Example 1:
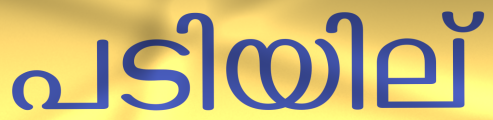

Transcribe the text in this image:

പടിയില്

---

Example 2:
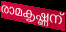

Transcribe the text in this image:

രാമകൃഷ്ണന്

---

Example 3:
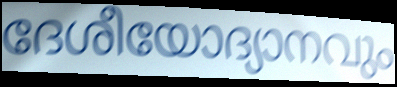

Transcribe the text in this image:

ദേശീയോദ്യാനവും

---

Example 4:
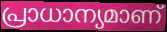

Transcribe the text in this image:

പ്രാധാന്യമാണ്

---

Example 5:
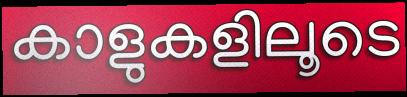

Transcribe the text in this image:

കാളുകളിലൂടെ